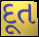
દૂત